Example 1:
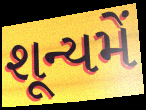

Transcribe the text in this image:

શૂન્યમેં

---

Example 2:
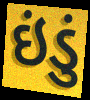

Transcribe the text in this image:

ઇંડું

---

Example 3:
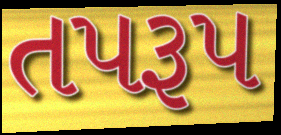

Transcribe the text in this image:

તપરૂપ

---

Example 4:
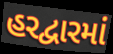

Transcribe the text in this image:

હરદ્વારમાં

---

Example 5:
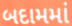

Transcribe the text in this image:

બદામમાં